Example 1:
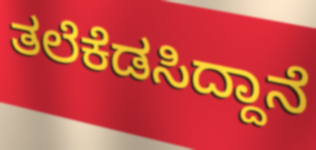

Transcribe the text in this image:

ತಲೆಕೆಡಸಿದ್ದಾನೆ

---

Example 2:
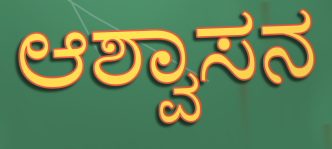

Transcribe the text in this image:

ಆಶ್ವಾಸನ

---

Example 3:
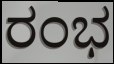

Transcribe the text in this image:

ರಂಭ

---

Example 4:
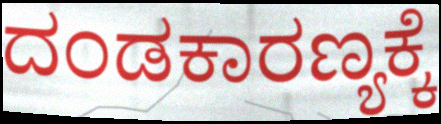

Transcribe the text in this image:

ದಂಡಕಾರಣ್ಯಕ್ಕೆ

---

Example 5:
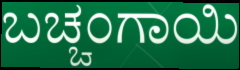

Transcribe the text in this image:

ಬಚ್ಚಂಗಾಯಿ